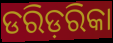
ଡରିଡ଼ରିକା